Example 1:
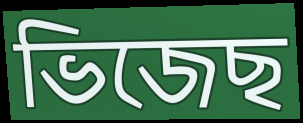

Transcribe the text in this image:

ভিজেছ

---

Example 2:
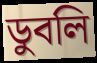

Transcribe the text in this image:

ডুবলি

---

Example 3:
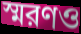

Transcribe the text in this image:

স্মরণও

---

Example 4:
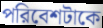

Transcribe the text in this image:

পরিবেশটাকে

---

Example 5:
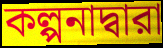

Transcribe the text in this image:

কল্পনাদ্বারা